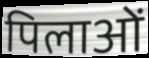
पिलाओं